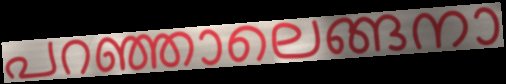
പറഞ്ഞാലെങ്ങനാ